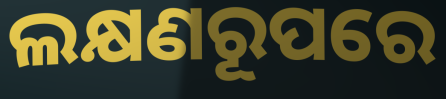
ଲକ୍ଷଣରୂପରେ